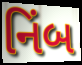
નિંબ